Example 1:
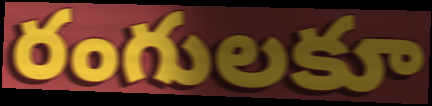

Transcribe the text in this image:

రంగులకూ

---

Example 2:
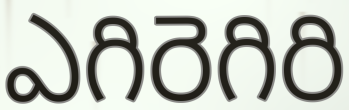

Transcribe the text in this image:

ఎగిరెగిరి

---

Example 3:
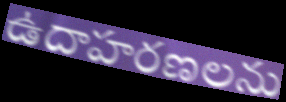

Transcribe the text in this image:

ఉదాహరణలను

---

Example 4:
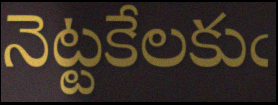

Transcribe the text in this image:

నెట్టకేలకుఁ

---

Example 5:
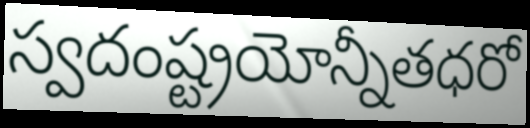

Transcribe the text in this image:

స్వదంష్ట్రయోన్నీతధరో